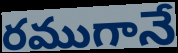
రముగానే